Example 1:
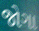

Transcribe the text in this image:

જોગા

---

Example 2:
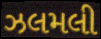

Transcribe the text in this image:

ઝલમલી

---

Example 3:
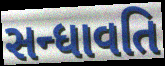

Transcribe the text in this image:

સન્ધાવતિ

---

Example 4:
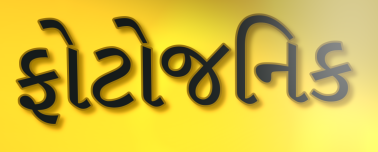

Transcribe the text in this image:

ફોટોજનિક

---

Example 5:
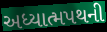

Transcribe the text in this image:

અધ્યાત્મપથની